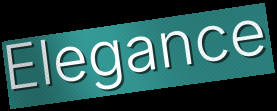
Elegance